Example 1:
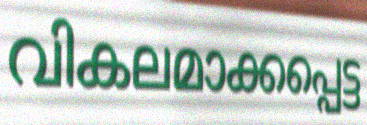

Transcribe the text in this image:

വികലമാക്കപ്പെട്ട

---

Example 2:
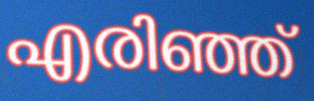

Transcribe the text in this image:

എരിഞ്ഞ്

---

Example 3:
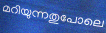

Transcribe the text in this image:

മറിയുന്നതുപോലെ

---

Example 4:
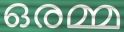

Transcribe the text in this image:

ഒരമ്മ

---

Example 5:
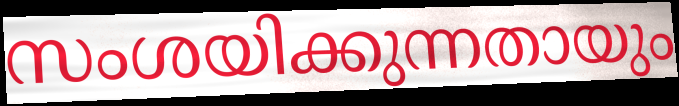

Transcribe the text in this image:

സംശയിക്കുന്നതായും